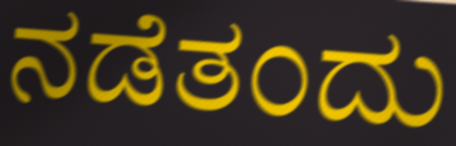
ನಡೆತಂದು